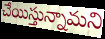
చేయిస్తున్నామని